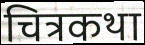
चित्रकथा